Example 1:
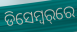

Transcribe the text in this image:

ଡିସେମ୍ବର୍‌ରେ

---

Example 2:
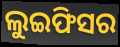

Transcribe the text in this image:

ଲୁଇଫିସର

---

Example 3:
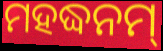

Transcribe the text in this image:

ମହଦ୍ଧନମ୍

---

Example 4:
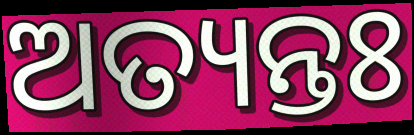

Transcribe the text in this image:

ଅତ୍ୟନ୍ତଃ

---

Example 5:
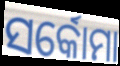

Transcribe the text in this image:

ସର୍କୋମା